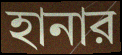
হানার